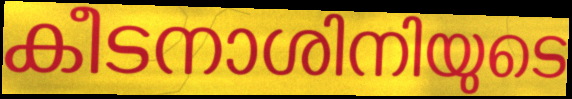
കീടനാശിനിയുടെ